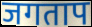
जगताप